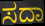
ಸದಾ